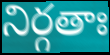
నిర్గతాః